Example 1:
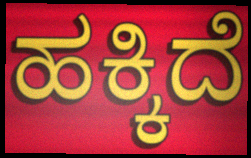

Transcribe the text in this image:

ಹಕ್ಕಿದೆ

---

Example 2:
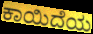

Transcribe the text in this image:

ಕಾಯಿದೆಯ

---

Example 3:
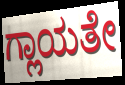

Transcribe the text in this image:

ಗ್ಲಾಯತೇ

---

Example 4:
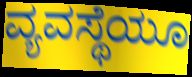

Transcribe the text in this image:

ವ್ಯವಸ್ಥೆಯೂ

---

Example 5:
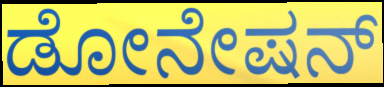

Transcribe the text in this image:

ಡೋನೇಷನ್